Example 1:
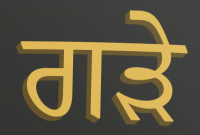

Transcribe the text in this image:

ਗੜੇ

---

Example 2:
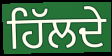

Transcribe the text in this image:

ਹਿੱਲਦੇ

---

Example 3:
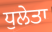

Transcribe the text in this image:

ਧੁਲੇਤਾ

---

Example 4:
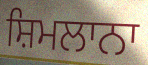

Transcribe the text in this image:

ਸ਼ਿਮਲਾਨਾ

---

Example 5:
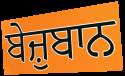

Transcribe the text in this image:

ਬੇਜ਼ੁਬਾਨ